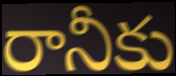
రానీకు